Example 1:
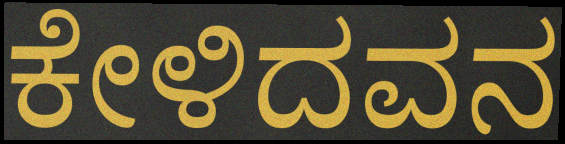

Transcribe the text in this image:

ಕೇಳಿದವನ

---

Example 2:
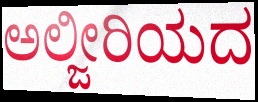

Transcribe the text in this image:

ಅಲ್ಜೀರಿಯದ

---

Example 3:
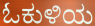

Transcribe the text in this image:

ಓಕುಳಿಯ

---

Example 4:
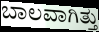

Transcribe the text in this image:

ಬಾಲವಾಗಿತ್ತು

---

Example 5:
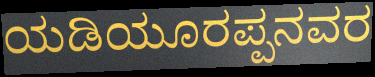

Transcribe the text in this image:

ಯಡಿಯೂರಪ್ಪನವರ